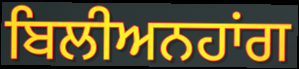
ਬਿਲੀਅਨਹਾਂਗ